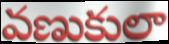
వణుకులా